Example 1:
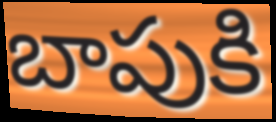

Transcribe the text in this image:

బాపుకి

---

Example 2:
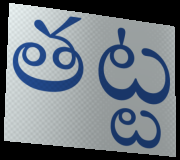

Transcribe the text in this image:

తట్ట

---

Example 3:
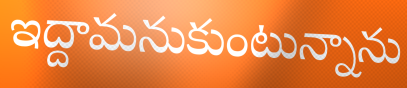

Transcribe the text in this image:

ఇద్దామనుకుంటున్నాను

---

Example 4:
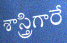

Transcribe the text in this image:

శాస్త్రిగారే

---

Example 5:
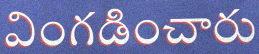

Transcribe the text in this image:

వింగడించారు